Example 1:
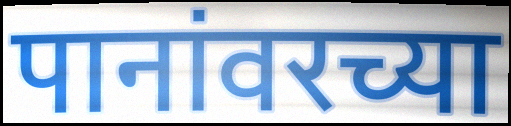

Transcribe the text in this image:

पानांवरच्या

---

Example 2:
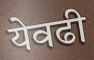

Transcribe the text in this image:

येवढी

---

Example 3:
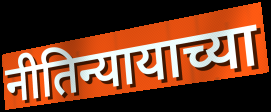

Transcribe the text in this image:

नीतिन्यायाच्या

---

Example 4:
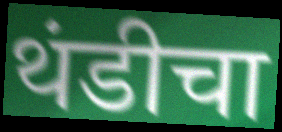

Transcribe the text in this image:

थंडीचा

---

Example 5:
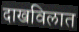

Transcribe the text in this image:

दाखविलात